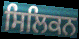
ਸਿਲਿਕਨ